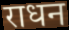
राधन